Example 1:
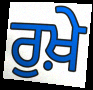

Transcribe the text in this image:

ਰੁਖ਼ੇ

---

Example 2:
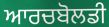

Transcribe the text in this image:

ਆਰਚਬੋਲਡੀ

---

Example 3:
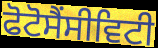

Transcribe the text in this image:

ਫੋਟੋਸੈਂਸੀਵਿਟੀ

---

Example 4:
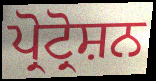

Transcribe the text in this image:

ਪ੍ਰੋਟ੍ਰੋਸ਼ਨ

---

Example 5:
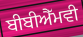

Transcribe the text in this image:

ਬੀਬੀਐੱਮਵੀ